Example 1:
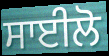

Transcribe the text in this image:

ਸਾਈਲੋ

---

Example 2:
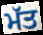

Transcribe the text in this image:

ਮੱਤ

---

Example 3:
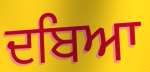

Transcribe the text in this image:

ਦਬਿਆ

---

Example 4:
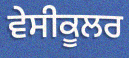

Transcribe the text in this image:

ਵੇਸੀਕੂਲਰ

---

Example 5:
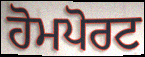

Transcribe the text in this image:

ਹੋਮਪੋਰਟ